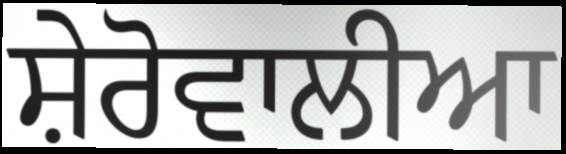
ਸ਼ੇਰੋਵਾਲੀਆ